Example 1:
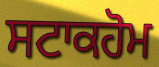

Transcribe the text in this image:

ਸਟਾਕਹੋਮ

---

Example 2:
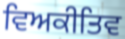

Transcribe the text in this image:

ਵਿਅਕੀਤਿਵ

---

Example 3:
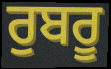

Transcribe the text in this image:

ਰੁਬਰੂ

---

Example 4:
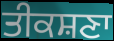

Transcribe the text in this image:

ਤੀਕਸ਼ਣਾ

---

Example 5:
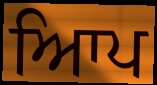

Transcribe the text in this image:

ਆਿਪ